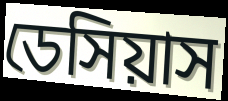
ডেসিয়াস